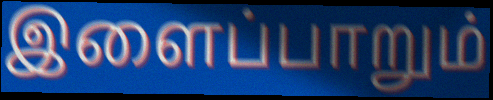
இளைப்பாறும்